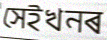
সেইখনৰ